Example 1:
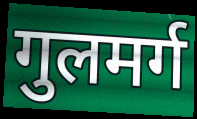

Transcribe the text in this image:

गुलमर्ग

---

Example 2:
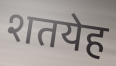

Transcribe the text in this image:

शतयेह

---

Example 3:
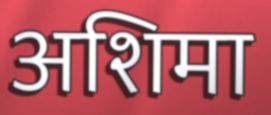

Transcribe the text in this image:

अशिमा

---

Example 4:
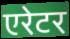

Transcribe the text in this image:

एरेटर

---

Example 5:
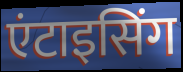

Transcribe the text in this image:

एंटाइसिंग